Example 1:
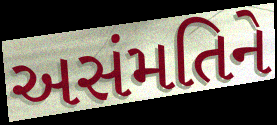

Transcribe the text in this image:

અસંમતિને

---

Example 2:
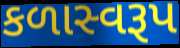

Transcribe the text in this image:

કળાસ્વરૂપ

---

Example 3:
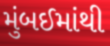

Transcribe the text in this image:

મુંબઈમાંથી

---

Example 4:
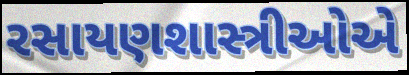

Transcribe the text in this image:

રસાયણશાસ્ત્રીઓએ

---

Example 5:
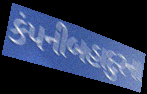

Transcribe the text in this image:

કંપનીબહાદુરના